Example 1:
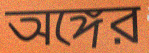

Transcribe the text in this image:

অঙ্গের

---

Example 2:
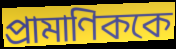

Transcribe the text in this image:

প্রামাণিককে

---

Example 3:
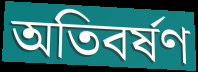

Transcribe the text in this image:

অতিবর্ষণ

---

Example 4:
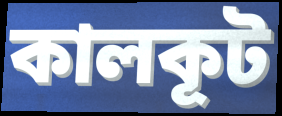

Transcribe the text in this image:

কালকূট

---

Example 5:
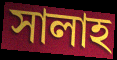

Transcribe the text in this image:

সালাহ